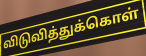
விடுவித்துக்கொள்